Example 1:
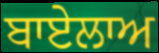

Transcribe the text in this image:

ਬਾਏਲਾਅ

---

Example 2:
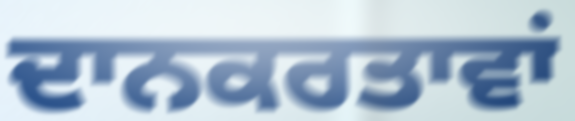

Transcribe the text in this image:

ਦਾਨਕਰਤਾਵਾਂ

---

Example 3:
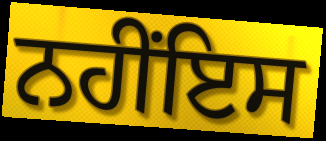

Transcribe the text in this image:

ਨਹੀਂਇਸ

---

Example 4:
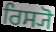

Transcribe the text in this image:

ਰਿਸ੍ਯੋ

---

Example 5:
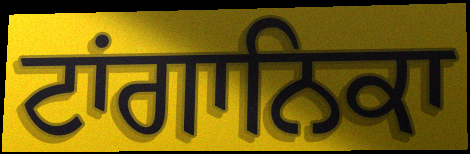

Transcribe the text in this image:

ਟਾਂਗਾਨਿਕਾ